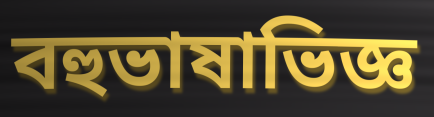
বহুভাষাভিজ্ঞ